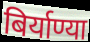
बिर्याण्या